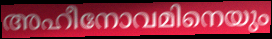
അഹീനോവമിനെയും